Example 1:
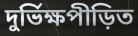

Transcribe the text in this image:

দুর্ভিক্ষপীড়িত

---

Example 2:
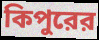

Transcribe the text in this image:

কিপুরের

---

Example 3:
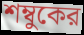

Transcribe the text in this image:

শম্বুকের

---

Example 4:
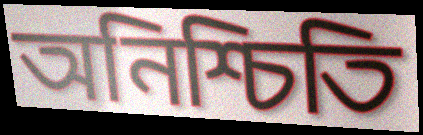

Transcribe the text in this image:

অনিশ্চিতি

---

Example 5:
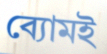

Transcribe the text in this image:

ব্যোমই